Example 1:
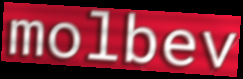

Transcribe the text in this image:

molbev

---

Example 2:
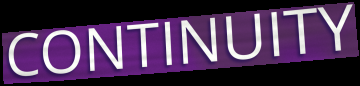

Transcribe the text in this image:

CONTINUITY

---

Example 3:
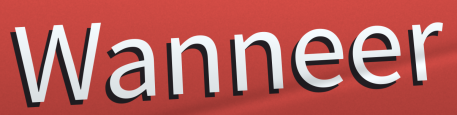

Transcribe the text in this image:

Wanneer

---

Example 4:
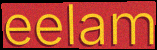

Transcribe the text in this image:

eelam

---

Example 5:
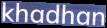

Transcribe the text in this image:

khadhan